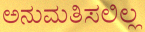
ಅನುಮತಿಸಲಿಲ್ಲ